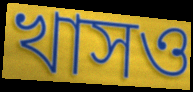
খাসও